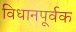
विधानपूर्वक